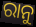
ରାନୁ